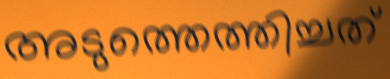
അടുത്തെത്തിച്ചത്